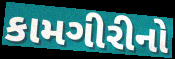
કામગીરીનો